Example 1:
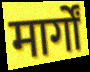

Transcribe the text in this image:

मार्गों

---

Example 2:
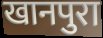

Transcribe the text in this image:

खानपुरा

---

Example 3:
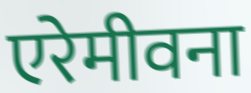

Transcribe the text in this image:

एरेमीवना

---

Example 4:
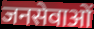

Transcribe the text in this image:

जनसेवाओं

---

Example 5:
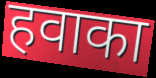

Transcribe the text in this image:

हवाका